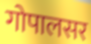
गोपालसर